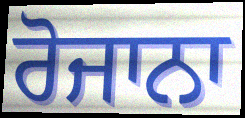
ਰੋਜਾਨਾ